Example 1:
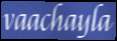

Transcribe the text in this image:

vaachayla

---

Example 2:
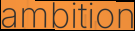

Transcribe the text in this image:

ambition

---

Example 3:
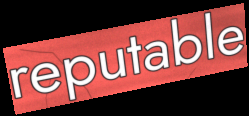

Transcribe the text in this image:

reputable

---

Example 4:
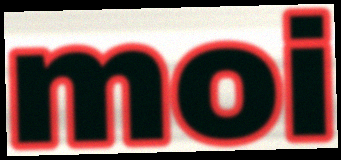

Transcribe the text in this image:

moi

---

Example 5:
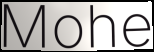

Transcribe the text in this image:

Mohe